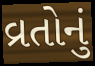
વ્રતોનું